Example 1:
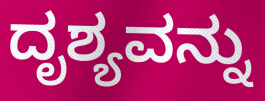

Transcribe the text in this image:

ದೃಶ್ಯವನ್ನು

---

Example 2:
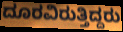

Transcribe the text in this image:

ದೂರವಿರುತ್ತಿದ್ದರು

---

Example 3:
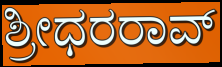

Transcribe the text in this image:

ಶ್ರೀಧರರಾವ್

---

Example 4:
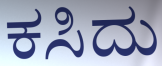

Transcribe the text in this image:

ಕಸಿದು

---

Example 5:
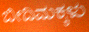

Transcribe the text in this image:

ಬೀದಿಮಕ್ಕಳು